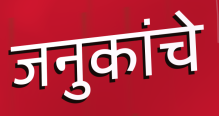
जनुकांचे